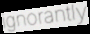
ignorantly